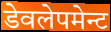
डेवलेपमेन्ट